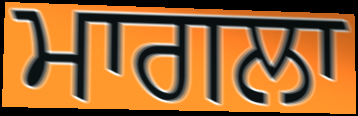
ਮਾਗਲਾ